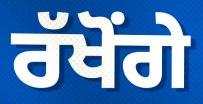
ਰੱਖੋਂਗੇ